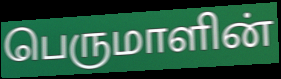
பெருமாளின்